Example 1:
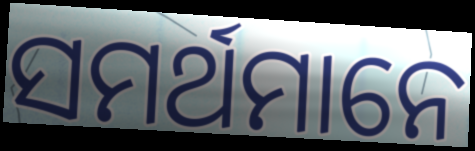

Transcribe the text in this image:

ସମର୍ଥମାନେ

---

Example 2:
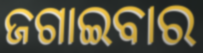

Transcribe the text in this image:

ଜଗାଇବାର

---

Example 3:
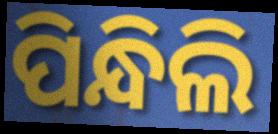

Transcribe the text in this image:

ପିନ୍ଧିଲି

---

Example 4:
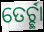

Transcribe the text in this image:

ତେର୍ଚ୍ଛା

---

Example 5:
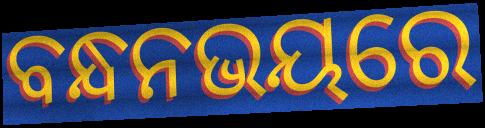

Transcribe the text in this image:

ବନ୍ଧନଭୟରେ